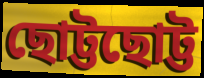
ছোট্টছোট্ট